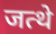
जत्थे